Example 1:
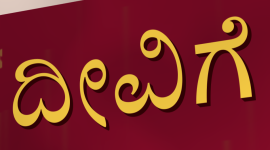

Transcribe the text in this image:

ದೀವಿಗೆ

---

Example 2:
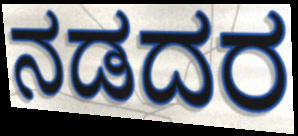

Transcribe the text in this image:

ನಡದರ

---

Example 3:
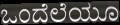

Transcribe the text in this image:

ಒಂದೆಲೆಯೂ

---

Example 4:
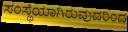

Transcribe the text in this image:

ಸಂಸ್ಥೆಯಾಗಿರುವುದರಿಂದ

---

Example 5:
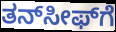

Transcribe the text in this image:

ತನ್‍ಸೀಫ್‍ಗೆ